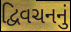
દ્વિવચનનું